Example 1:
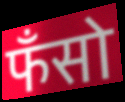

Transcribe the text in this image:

फँसो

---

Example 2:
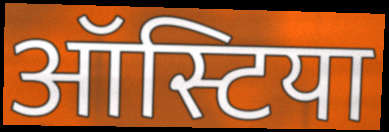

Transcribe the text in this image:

ऑस्टिया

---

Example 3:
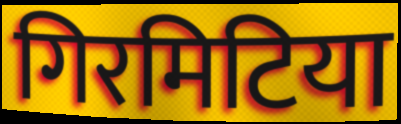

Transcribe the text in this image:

गिरमिटिया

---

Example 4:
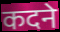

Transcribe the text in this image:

कदने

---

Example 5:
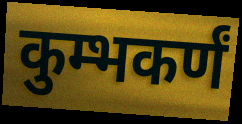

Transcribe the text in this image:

कुम्भकर्णं